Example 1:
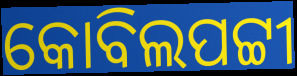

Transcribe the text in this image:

କୋବିଲପଟ୍ଟୀ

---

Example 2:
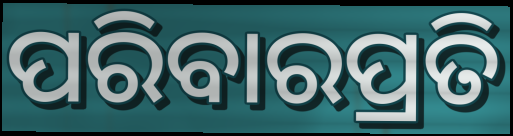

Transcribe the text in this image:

ପରିବାରପ୍ରତି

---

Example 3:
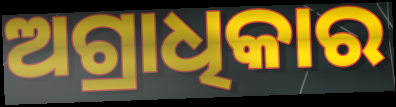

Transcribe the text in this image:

ଅଗ୍ରାଧିକାର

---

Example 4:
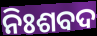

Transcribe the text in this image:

ନିଃଶବଦ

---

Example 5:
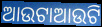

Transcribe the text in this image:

ଆଉଟାଆଉଟି